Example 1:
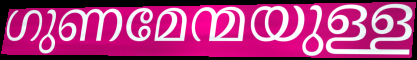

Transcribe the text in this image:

ഗുണമേന്മയുള്ള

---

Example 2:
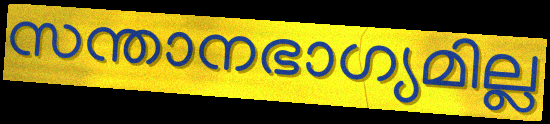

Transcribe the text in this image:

സന്താനഭാഗ്യമില്ല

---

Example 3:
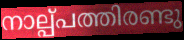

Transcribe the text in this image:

നാല്പ്പത്തിരണ്ടു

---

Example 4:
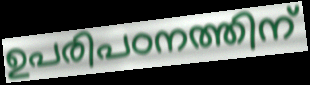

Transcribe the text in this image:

ഉപരിപഠനത്തിന്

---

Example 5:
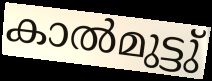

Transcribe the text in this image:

കാൽമുട്ടു്